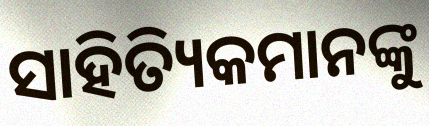
ସାହିତ୍ୟିକମାନଙ୍କୁ